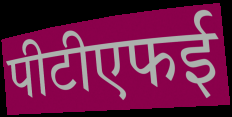
पीटीएफई